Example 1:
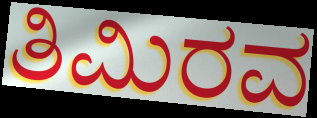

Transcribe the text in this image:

ತಿಮಿರವ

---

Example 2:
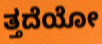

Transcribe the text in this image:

ತ್ತದೆಯೋ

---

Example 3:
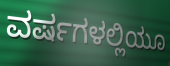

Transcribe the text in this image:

ವರ್ಷಗಳಲ್ಲಿಯೂ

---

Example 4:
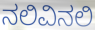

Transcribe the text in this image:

ನಲಿವಿನಲಿ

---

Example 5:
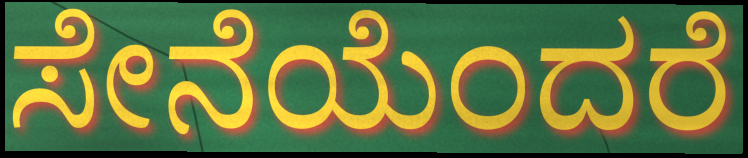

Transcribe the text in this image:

ಸೇನೆಯೆಂದರೆ